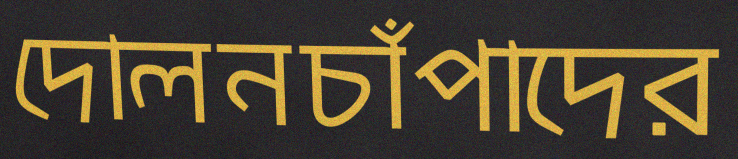
দোলনচাঁপাদের